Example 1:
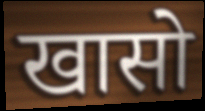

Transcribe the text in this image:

खासो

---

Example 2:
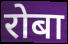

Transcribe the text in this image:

रोबा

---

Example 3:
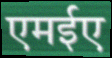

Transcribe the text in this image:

एमईए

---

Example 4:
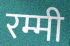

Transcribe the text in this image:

रम्मी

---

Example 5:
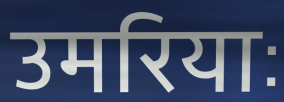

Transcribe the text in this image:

उमरियाः